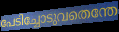
പേടിച്ചോടുവതെന്തേ